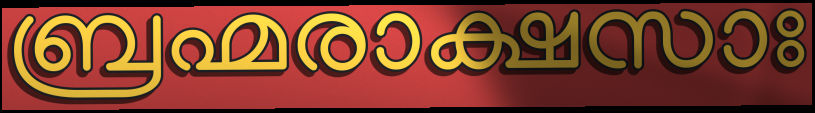
ബ്രഹ്മരാക്ഷസാഃ